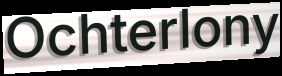
Ochterlony